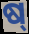
ଷ୍